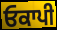
ਓਕਾਪੀ